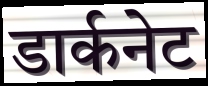
डार्कनेट